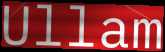
Ullam